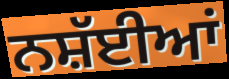
ਨਸ਼ੱਈਆਂ